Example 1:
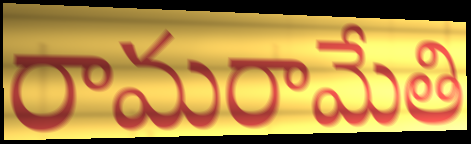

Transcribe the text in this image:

రామరామేతి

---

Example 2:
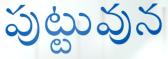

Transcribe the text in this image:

పుట్టువున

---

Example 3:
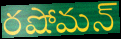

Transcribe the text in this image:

రషోమన్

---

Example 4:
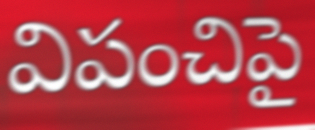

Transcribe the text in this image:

విపంచిపై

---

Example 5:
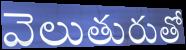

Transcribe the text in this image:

వెలుతురుతో